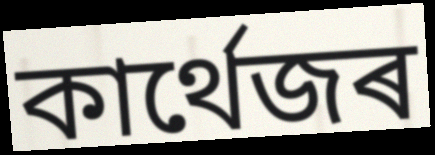
কাৰ্থেজৰ